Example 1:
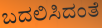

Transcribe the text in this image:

ಬದಲಿಸಿದಂತೆ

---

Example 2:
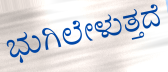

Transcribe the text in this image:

ಭುಗಿಲೇಳುತ್ತದೆ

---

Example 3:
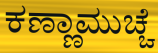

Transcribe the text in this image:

ಕಣ್ಣಾಮುಚ್ಚೆ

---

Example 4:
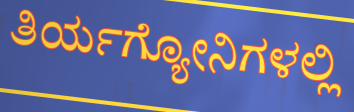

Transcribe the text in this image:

ತಿರ್ಯಗ್ಯೋನಿಗಳಲ್ಲಿ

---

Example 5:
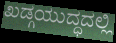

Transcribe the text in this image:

ಖಡ್ಗಯುದ್ಧದಲ್ಲಿ